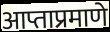
आप्ताप्रमाणे